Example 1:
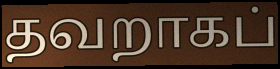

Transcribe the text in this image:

தவறாகப்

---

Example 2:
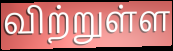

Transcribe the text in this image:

விற்றுள்ள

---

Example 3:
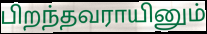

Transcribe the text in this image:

பிறந்தவராயினும்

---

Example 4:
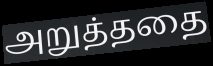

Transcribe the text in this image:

அறுத்ததை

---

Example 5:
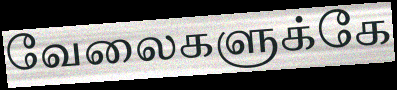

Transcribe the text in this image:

வேலைகளுக்கே